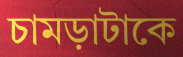
চামড়াটাকে